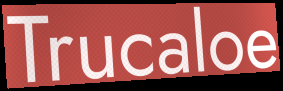
Trucaloe